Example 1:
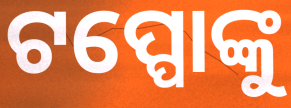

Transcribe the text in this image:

ଟପ୍ପୋଙ୍କୁ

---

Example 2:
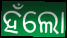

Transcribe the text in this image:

ହଁଲୋ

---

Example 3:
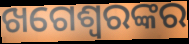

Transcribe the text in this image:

ଖଗେଶ୍ୱରଙ୍କର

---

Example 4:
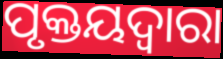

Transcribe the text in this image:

ପୃକ୍ତୟଦ୍ଵାରା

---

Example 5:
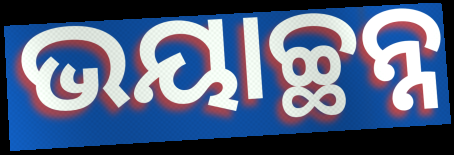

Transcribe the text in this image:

ଭୟାଚ୍ଛନ୍ନ